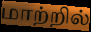
மாற்றில்